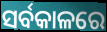
ସର୍ବକାଳରେ